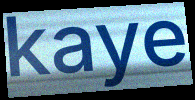
kaye